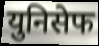
युनिसेफ